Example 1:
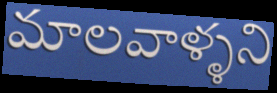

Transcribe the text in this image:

మాలవాళ్ళని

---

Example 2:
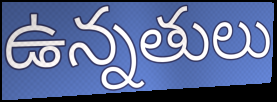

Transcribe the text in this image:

ఉన్నతులు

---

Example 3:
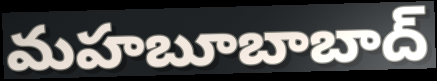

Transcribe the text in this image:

మహబూబాబాద్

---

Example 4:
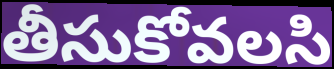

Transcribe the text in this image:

తీసుకోవలసి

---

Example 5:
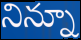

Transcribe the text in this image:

నిన్నూ